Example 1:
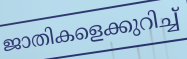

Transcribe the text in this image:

ജാതികളെക്കുറിച്ച്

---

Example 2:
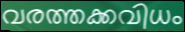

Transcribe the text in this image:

വരത്തക്കവിധം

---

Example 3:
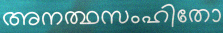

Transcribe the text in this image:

അനത്ഥസംഹിതോ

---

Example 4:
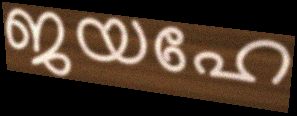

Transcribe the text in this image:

ജയഹേ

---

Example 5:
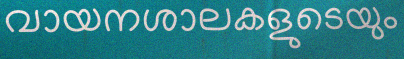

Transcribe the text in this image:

വായനശാലകളുടെയും